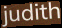
judith